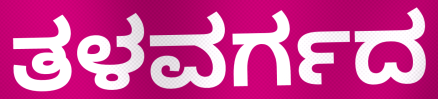
ತಳವರ್ಗದ